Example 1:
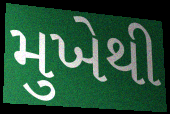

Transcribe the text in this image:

મુખેથી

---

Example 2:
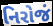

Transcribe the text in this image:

નિરોજં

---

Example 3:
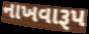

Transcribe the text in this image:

નાખવારૂપ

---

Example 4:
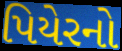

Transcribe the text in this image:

પિયેરનો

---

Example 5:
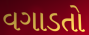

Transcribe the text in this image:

વગાડતો